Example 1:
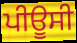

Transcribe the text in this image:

ਪੀਊਸੀ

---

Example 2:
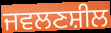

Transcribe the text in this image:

ਜਵਲਣਸ਼ੀਲ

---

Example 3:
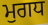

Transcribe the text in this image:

ਮੁਗਧ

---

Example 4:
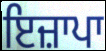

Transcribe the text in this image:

ਇਜ਼ਾਪਾ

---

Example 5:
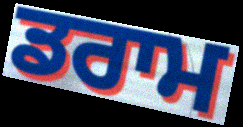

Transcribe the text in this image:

ਡਰਾਮ